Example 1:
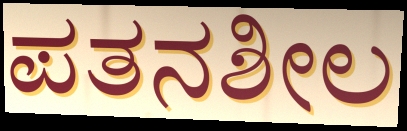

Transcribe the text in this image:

ಪತನಶೀಲ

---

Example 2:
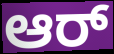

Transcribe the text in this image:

ಆರ್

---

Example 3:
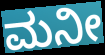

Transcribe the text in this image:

ಮನೀ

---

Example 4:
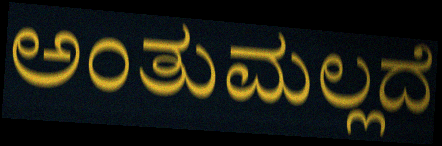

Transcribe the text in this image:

ಅಂತುಮಲ್ಲದೆ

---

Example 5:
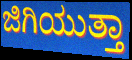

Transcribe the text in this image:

ಜಿಗಿಯುತ್ತಾ